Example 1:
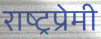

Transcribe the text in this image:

राष्ट्रप्रेमी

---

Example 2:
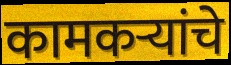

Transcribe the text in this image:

कामकऱ्यांचे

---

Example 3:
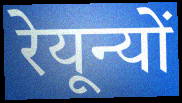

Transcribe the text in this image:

रेयून्यों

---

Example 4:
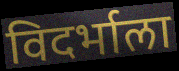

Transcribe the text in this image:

विदर्भाला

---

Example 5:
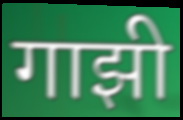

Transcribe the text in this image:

गाझी